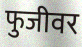
फुजीवर